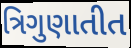
ત્રિગુણાતીત